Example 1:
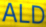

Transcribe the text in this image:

ALD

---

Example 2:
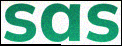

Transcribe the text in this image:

sas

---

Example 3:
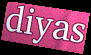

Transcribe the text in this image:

diyas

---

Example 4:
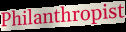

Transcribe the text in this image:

Philanthropist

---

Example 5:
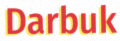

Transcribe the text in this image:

Darbuk